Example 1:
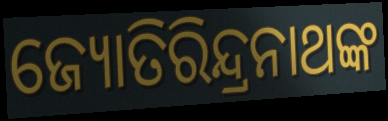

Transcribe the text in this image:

ଜ୍ୟୋତିରିନ୍ଦ୍ରନାଥଙ୍କ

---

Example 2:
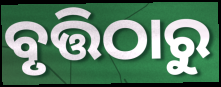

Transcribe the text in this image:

ବୃତ୍ତିଠାରୁ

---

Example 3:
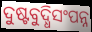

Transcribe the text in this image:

ଦୁଷ୍ଟବୁଦ୍ଧିସଂପନ୍ନ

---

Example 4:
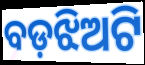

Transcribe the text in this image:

ବଡ଼ଝିଅଟି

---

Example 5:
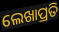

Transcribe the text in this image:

ଲେଖାପ୍ରତି